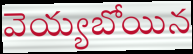
వెయ్యబోయిన